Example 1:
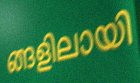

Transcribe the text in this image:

ങ്ങളിലായി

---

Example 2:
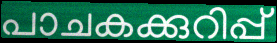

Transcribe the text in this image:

പാചകക്കുറിപ്പ്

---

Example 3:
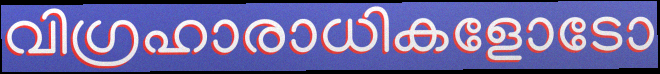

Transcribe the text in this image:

വിഗ്രഹാരാധികളോടോ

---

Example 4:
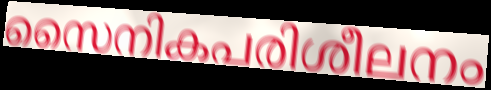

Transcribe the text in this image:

സൈനികപരിശീലനം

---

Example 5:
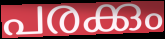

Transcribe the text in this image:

പരക്കും